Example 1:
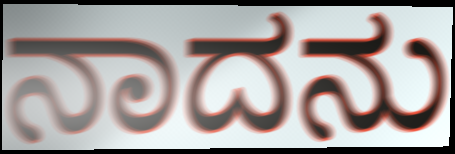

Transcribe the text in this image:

ನಾದನು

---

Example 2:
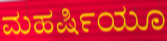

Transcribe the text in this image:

ಮಹರ್ಷಿಯೂ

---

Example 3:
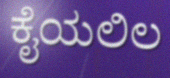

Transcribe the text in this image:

ಕೈಯಲಿಲ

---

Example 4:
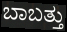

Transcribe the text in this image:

ಬಾಬತ್ತು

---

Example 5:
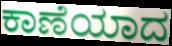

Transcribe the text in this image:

ಕಾಣೆಯಾದ